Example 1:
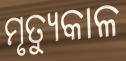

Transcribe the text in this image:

ମୃତ୍ୟୁକାଳ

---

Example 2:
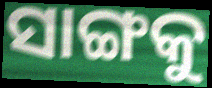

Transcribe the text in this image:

ସାଙ୍ଗକୁ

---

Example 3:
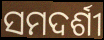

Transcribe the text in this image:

ସମଦର୍ଶୀ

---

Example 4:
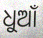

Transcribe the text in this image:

ଧୁଆଁ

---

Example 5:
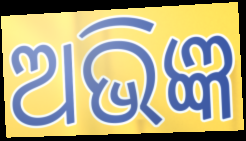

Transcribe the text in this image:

ଅଭିଜ୍ଞ